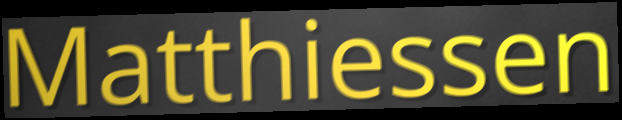
Matthiessen